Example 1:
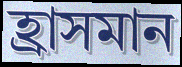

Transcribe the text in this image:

হ্ৰাসমান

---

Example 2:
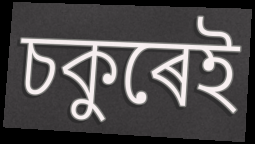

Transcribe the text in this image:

চকুৰেই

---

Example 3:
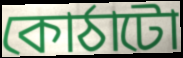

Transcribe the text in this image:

কোঠাটো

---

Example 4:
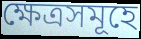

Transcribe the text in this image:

ক্ষেত্ৰসমূহে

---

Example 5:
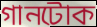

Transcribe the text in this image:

গানটোক